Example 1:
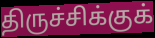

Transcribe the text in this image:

திருச்சிக்குக்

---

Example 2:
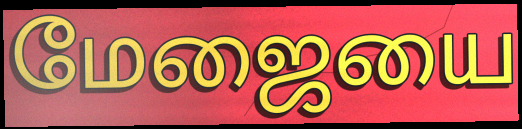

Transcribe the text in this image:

மேஜையை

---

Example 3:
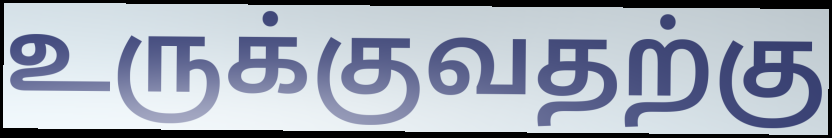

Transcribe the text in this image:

உருக்குவதற்கு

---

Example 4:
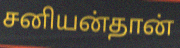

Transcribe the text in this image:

சனியன்தான்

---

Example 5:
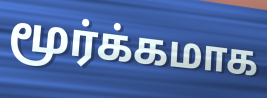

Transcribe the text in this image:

மூர்க்கமாக